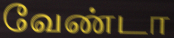
வேண்டா